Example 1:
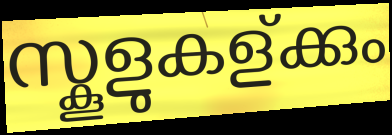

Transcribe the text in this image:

സ്കൂളുകള്ക്കും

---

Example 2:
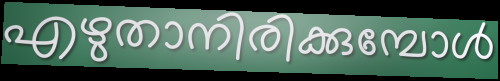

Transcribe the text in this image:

എഴുതാനിരിക്കുമ്പോൾ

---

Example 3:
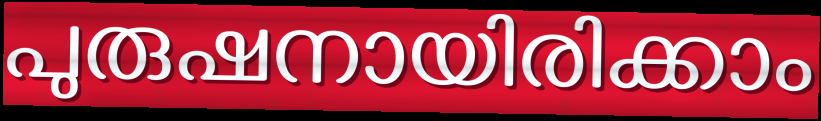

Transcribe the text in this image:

പുരുഷനായിരിക്കാം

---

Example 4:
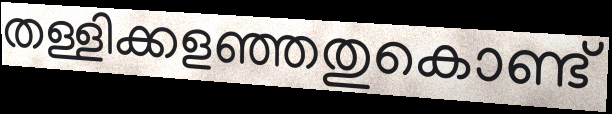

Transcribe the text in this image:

തള്ളിക്കളഞ്ഞതുകൊണ്ട്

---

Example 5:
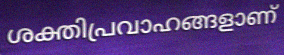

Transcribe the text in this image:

ശക്തിപ്രവാഹങ്ങളാണ്